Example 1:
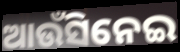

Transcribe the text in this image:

ଆଉଁସିନେଇ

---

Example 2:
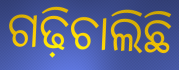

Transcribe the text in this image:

ଗଢ଼ିଚାଲିଛି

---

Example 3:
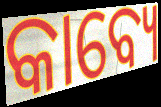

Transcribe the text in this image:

କାବ୍ୟେ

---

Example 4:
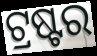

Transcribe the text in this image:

ଟ୍ରଷ୍ଟର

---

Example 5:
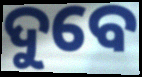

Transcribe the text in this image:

ଦୁବେ